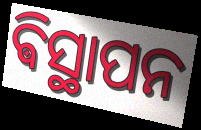
ଵିସ୍ଥାପନ